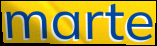
marte